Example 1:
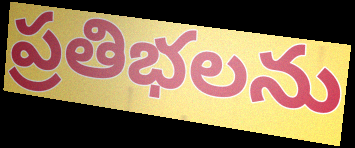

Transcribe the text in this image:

ప్రతిభలను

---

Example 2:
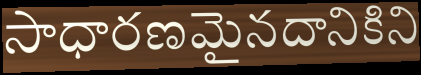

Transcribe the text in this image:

సాధారణమైనదానికిని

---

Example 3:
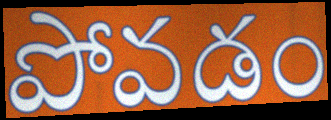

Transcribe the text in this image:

పోవడం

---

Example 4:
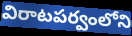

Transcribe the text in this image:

విరాటపర్వంలోని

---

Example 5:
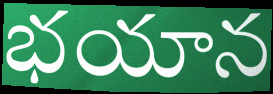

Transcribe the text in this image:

భయాన